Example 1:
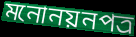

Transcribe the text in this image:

মনোনয়নপত্র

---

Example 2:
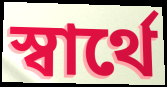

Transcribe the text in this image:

স্বার্থে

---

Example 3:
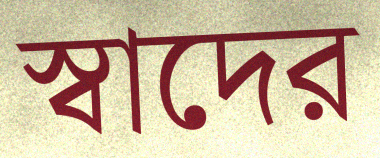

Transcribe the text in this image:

স্বাদের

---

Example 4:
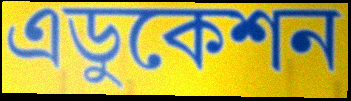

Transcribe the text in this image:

এডুকেশন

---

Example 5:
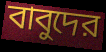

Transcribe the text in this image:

বাবুদের